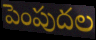
పెంపుదల